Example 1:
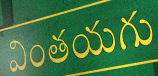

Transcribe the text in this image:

వింతయగు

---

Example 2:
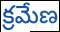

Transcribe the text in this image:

క్రమేణ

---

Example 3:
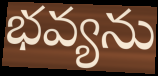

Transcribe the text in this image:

భవ్యను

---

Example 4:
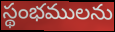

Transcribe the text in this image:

స్థంభములను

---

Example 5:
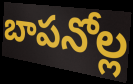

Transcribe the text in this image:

బాపనోల్ల